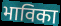
भाविका